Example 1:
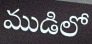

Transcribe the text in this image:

ముడిలో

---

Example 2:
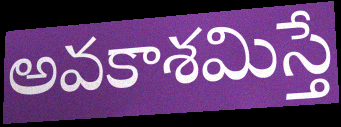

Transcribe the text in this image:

అవకాశమిస్తే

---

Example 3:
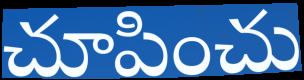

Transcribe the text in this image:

చూపించు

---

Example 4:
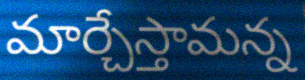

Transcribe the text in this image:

మార్చేస్తామన్న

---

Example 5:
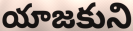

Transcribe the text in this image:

యాజకుని